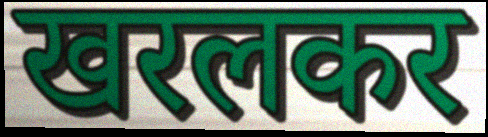
खरलकर